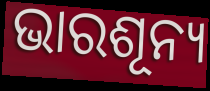
ଭାରଶୂନ୍ୟ